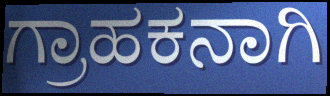
ಗ್ರಾಹಕನಾಗಿ